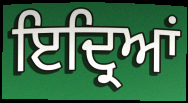
ਇਦ੍ਰਿਆਂ